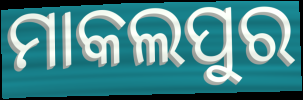
ମାକଲପୁର